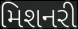
મિશનરી